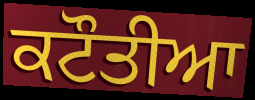
ਕਟੌਤੀਆ